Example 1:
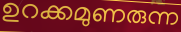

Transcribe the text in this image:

ഉറക്കമുണരുന്ന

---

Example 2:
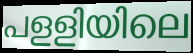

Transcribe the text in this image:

പളളിയിലെ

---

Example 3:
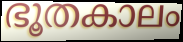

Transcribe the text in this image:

ഭൂതകാലം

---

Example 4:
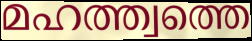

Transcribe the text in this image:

മഹത്ത്വത്തെ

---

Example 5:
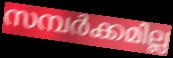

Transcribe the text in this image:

സമ്പർക്കമില്ല